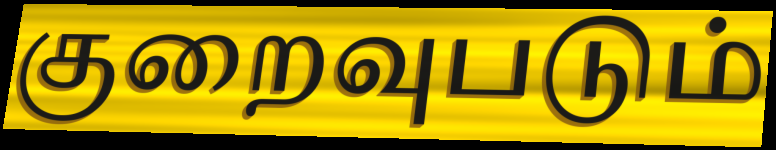
குறைவுபடும்